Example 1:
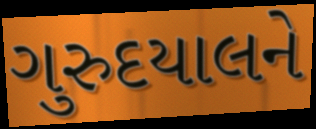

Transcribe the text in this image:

ગુરુદયાલને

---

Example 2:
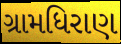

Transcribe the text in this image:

ગ્રામધિરાણ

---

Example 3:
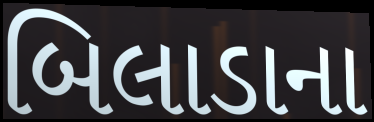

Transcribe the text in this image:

બિલાડાના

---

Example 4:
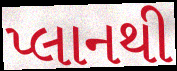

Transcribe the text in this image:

પ્લાનથી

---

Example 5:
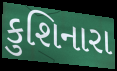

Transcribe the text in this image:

કુશિનારા